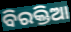
ବିରକ୍ତିଆ